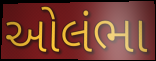
ઓલંભા